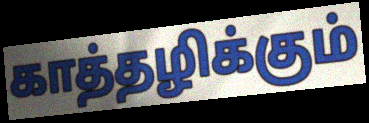
காத்தழிக்கும்